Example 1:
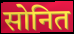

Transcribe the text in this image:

सोनित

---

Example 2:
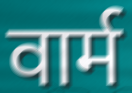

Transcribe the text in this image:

वार्म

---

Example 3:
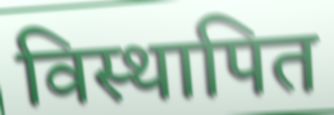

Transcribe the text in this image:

विस्थापित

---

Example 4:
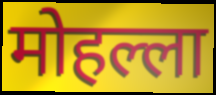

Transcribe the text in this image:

मोहल्ला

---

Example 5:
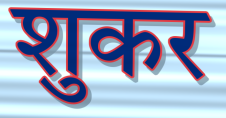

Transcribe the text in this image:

शुकर